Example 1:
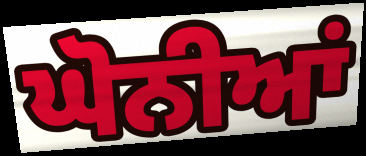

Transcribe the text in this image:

ਘੋਨੀਆਂ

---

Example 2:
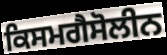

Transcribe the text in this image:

ਕਿਸਮਗੈਸੋਲੀਨ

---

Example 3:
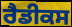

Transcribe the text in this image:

ਰੈਡੀਕਸ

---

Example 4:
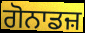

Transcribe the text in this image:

ਗੋਨਾਡਜ਼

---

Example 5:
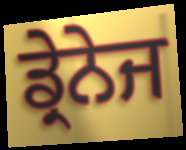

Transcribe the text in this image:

ਡ੍ਰੇਨੇਜ